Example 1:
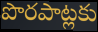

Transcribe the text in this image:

పొరపాట్లకు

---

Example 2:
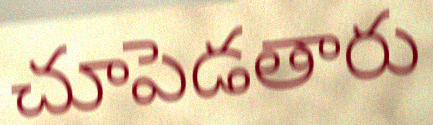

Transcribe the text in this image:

చూపెడతారు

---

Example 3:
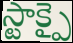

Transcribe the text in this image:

స్టాక్పై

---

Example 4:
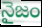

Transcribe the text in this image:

నైజం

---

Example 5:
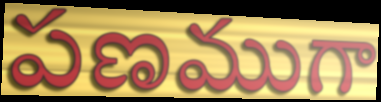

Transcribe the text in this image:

పణముగా